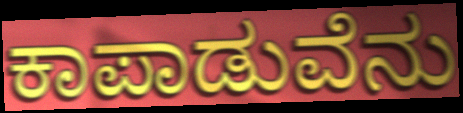
ಕಾಪಾಡುವೆನು